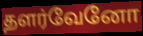
தளர்வேனோ